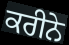
ਕਰੀਨੇ